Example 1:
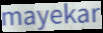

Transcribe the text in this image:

mayekar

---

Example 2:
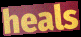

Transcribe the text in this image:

heals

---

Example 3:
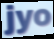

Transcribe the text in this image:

jyo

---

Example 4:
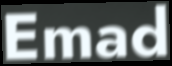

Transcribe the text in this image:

Emad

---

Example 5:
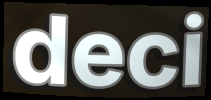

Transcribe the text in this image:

deci